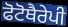
ਫੋਟੋਥੈਰੇਪੀ